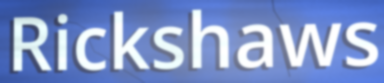
Rickshaws